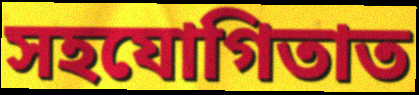
সহযোগিতাত